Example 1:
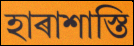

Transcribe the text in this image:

হাৰাশাস্তি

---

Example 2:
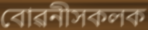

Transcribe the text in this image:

বোৱনীসকলক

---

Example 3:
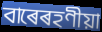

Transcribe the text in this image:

বাৰেৰহণীয়া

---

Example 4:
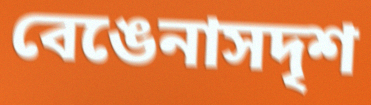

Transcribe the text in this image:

বেঙেনাসদৃশ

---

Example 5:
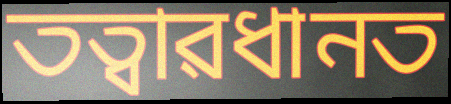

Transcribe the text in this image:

তত্বাৱধানত